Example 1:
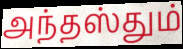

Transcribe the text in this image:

அந்தஸ்தும்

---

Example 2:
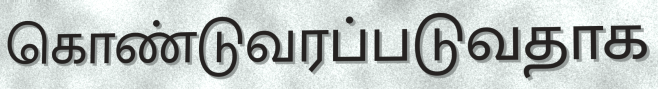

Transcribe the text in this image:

கொண்டுவரப்படுவதாக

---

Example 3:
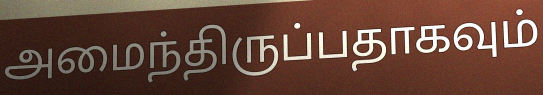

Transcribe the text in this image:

அமைந்திருப்பதாகவும்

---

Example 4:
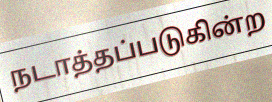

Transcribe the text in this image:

நடாத்தப்படுகின்ற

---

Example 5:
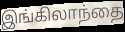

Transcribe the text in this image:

இங்கிலாந்தை